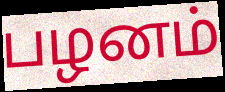
பழனம்